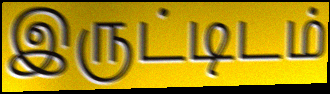
இருட்டிடம்